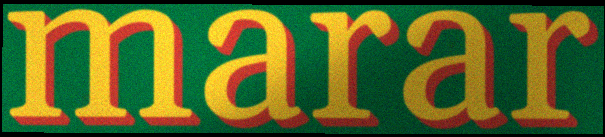
marar